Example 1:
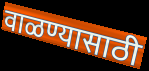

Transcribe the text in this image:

वाळण्यासाठी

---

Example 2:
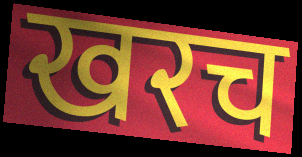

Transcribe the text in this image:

खरच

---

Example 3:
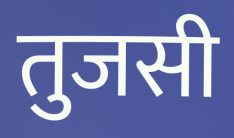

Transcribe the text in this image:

तुजसी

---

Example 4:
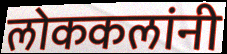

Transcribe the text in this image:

लोककलांनी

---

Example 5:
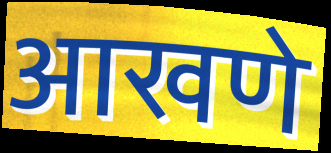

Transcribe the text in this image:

आखणे